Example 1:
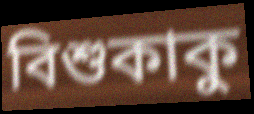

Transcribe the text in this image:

বিশুকাকু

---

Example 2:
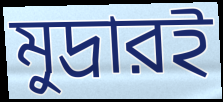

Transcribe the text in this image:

মুদ্রারই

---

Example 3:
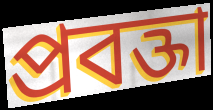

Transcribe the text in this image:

প্রবক্তা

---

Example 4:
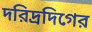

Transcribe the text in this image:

দরিদ্রদিগের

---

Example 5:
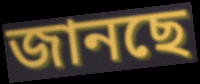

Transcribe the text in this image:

জানছে